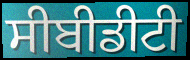
ਸੀਬੀਡੀਟੀ